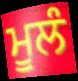
ਮੂਲੰ